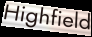
Highfield